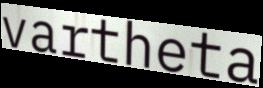
vartheta